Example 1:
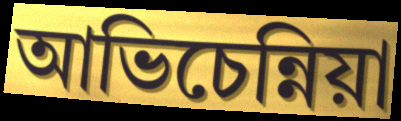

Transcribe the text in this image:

আভিচেন্নিয়া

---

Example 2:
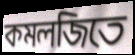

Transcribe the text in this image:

কমলজিতে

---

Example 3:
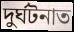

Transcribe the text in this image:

দুৰ্ঘটনাত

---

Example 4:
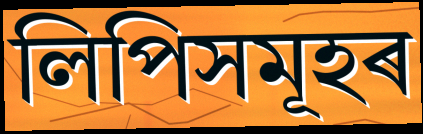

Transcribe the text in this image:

লিপিসমূহৰ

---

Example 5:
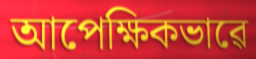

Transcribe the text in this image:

আপেক্ষিকভাৱে